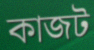
কাজট